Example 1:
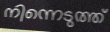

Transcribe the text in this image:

നിന്നെടുത്ത്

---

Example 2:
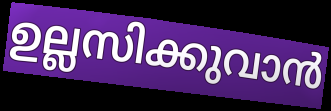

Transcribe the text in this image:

ഉല്ലസിക്കുവാൻ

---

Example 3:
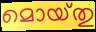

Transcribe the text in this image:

മൊയ്‌തു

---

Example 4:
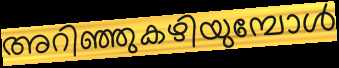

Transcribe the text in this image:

അറിഞ്ഞുകഴിയുമ്പോൾ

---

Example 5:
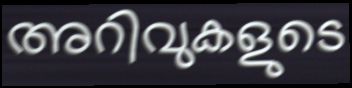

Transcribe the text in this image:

അറിവുകളുടെ